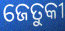
ଜେତୁକୀ